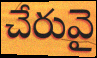
చేరువై